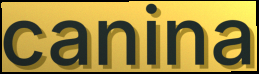
canina